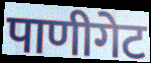
पाणीगेट